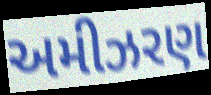
અમીઝરણ